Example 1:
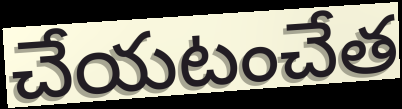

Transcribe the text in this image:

చేయటంచేత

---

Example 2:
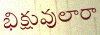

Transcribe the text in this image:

భిక్షువులారా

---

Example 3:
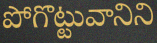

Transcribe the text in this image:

పోగొట్టువానిని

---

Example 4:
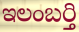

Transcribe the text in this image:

ఇలంబర్తి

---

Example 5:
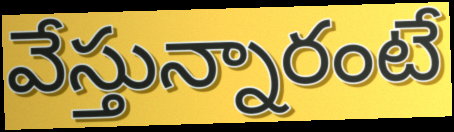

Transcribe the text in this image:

వేస్తున్నారంటే